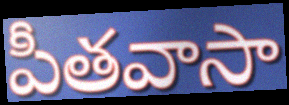
పీతవాసా